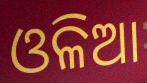
ଓଳିଆ